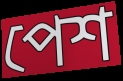
পেশ